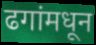
ढगांमधून